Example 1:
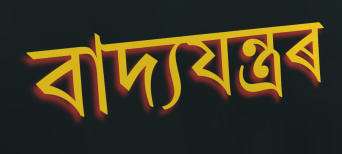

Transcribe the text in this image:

বাদ্যযন্ত্ৰৰ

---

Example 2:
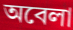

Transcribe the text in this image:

অবেলা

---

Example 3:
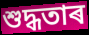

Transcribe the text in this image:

শুদ্ধতাৰ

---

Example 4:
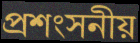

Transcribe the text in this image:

প্ৰশংসনীয়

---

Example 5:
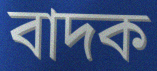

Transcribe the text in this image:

বাদক